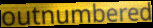
outnumbered